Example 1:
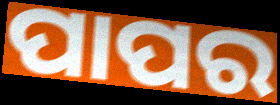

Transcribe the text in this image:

ପାପର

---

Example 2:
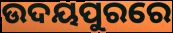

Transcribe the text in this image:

ଉଦୟପୁରରେ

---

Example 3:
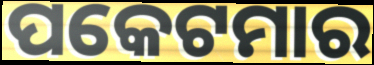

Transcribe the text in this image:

ପକେଟମାର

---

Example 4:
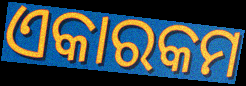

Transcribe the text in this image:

ଏକାରକମ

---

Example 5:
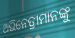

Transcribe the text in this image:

ଅଭିନେତ୍ରୀମାନଙ୍କୁ